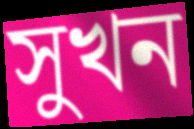
সুখন